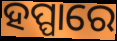
ହପ୍ପାରେ